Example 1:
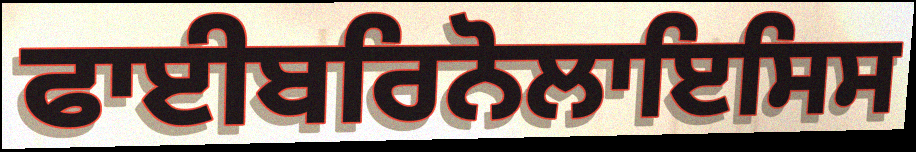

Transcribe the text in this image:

ਫਾਈਬਰਿਨੋਲਾਇਸਿਸ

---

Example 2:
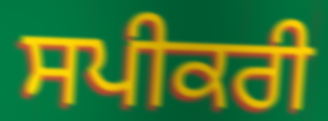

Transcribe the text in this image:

ਸਪੀਕਰੀ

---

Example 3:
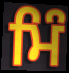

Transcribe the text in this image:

ਮਿੰ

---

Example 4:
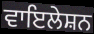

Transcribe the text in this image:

ਵਾਇਲੇਸ਼ਨ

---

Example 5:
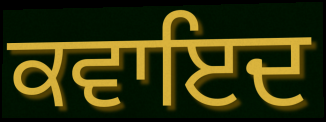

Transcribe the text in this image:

ਕਵਾਇਦ